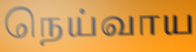
நெய்வாய